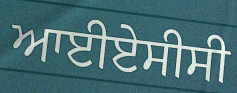
ਆਈਏਸੀਸੀ